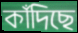
কাঁদিছে